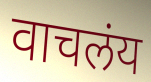
वाचलंय